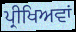
ਪ੍ਰੀਖਿਅਵਾਂ